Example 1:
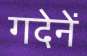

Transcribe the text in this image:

गदेनें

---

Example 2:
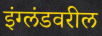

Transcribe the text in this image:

इंग्लंडवरील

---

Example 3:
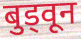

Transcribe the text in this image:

बुड्वून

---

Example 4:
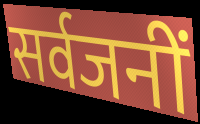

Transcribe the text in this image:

सर्वजनीं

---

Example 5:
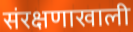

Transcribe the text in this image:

संरक्षणाखाली